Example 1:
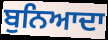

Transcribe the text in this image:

ਬੁਨਿਆਦਾ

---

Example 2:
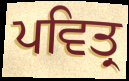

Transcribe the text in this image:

ਪਵਿਤ੍ਰ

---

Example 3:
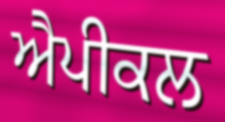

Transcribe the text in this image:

ਐਪੀਕਲ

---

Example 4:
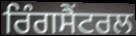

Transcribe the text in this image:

ਰਿੰਗਸੈਂਟਰਲ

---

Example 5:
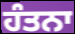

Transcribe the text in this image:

ਹੰਤਨਾ